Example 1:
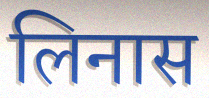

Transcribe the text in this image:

लिनास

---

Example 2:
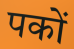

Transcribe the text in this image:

पकों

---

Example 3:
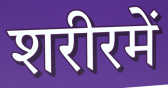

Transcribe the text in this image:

शरीरमें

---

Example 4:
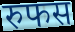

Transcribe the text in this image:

रुफस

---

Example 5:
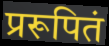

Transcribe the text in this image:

प्ररूपितं